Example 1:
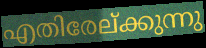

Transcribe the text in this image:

എതിരേല്ക്കുന്നു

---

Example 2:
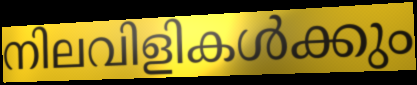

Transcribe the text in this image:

നിലവിളികൾക്കും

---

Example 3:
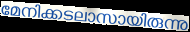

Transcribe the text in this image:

മേനിക്കടലാസായിരുന്നു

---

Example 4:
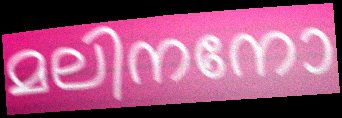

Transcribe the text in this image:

മലിനനോ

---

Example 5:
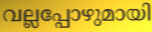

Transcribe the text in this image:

വല്ലപ്പോഴുമായി